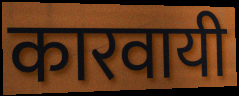
कारवायी